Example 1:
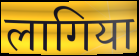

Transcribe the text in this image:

लागिया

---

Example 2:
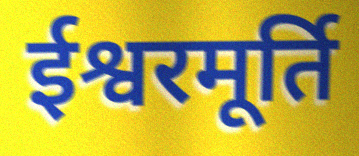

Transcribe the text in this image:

ईश्वरमूर्ति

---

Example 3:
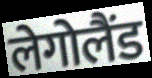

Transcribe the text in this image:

लेगोलैंड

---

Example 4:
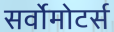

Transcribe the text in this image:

सर्वोमोटर्स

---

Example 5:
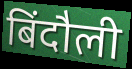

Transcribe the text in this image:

बिंदौली